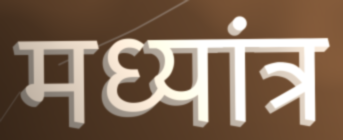
मध्यांत्र